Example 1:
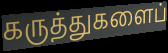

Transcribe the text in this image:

கருத்துகளைப்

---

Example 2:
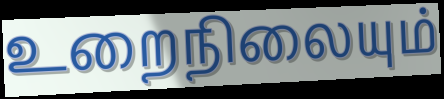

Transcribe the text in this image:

உறைநிலையும்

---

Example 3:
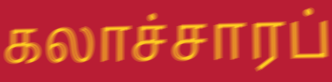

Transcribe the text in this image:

கலாச்சாரப்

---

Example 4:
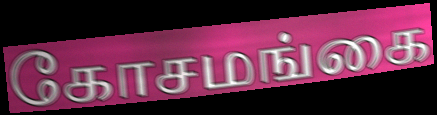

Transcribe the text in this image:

கோசமங்கை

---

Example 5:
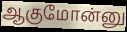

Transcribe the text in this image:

ஆகுமோன்னு